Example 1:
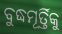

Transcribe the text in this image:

ବୁଦ୍ଧମୂର୍ତ୍ତିକୁ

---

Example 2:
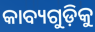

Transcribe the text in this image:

କାବ୍ୟଗୁଡ଼ିକୁ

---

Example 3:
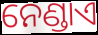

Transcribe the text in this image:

ନେଣ୍ଡାଏ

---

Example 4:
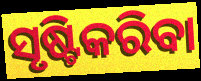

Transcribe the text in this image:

ସୃଷ୍ଟିକରିବା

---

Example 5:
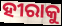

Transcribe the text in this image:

ହୀରାକୁ